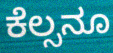
ಕೆಲ್ಸನೂ